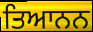
ਤਿਆਨਨ